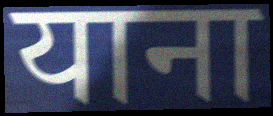
याना